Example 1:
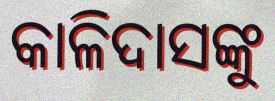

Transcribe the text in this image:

କାଳିଦାସଙ୍କୁ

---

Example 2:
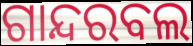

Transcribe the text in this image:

ଗାନ୍ଦରବଲ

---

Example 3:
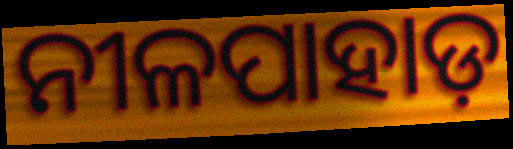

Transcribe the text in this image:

ନୀଳପାହାଡ଼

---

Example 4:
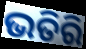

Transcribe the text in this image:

ଭତିରି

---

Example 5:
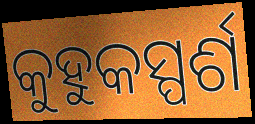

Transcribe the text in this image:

କୁହୁକସ୍ପର୍ଶ